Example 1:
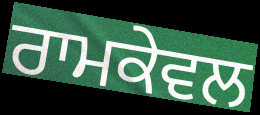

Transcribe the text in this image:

ਰਾਮਕੇਵਲ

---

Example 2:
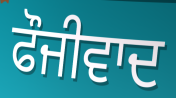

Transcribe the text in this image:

ਫੌਜੀਵਾਦ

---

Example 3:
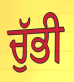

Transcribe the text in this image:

ਚੁੱਭੀ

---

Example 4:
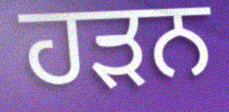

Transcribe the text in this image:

ਹੜਨ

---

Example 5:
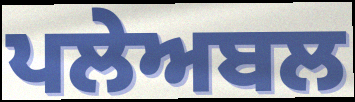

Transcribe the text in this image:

ਪਲੇਅਬਲ